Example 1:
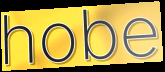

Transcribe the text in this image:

hobe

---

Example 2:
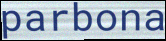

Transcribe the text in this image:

parbona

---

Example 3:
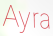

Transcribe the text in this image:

Ayra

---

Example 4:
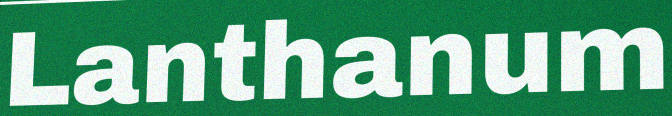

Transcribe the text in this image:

Lanthanum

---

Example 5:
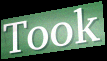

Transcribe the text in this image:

Took